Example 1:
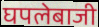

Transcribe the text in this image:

घपलेबाजी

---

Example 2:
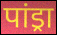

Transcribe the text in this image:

पांड्रा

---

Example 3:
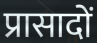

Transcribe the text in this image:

प्रासादों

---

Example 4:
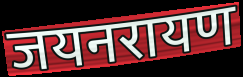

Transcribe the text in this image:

जयनरायण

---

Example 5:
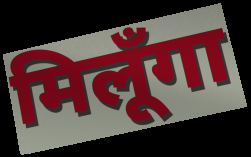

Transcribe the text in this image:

मिलूँगा